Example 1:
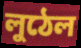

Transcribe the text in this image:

লুঠেল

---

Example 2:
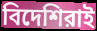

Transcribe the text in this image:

বিদেশিরাই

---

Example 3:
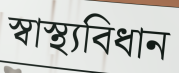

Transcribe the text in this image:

স্বাস্থ্যবিধান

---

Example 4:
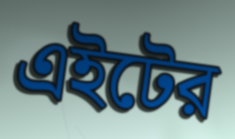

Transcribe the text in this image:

এইটের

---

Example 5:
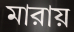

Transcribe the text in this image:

মারায়